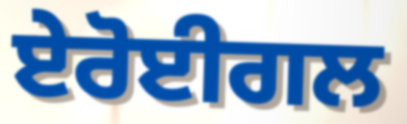
ਏਰੋਈਗਲ